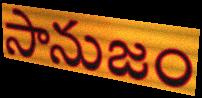
సానుజం